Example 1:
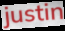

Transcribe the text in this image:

justin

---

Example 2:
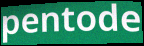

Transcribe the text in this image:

pentode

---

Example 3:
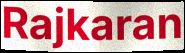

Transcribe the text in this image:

Rajkaran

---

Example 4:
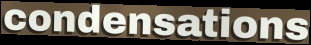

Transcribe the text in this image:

condensations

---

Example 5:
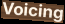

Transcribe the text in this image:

Voicing